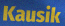
Kausik